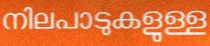
നിലപാടുകളുള്ള